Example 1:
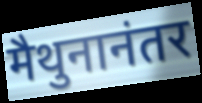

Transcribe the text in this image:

मैथुनानंतर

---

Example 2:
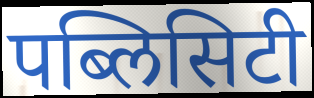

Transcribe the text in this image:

पब्लिसिटी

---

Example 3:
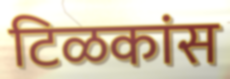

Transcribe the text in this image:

टिळकांस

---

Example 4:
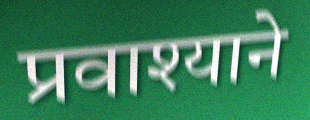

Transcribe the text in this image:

प्रवाश्याने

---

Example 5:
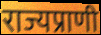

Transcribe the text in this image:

राज्यप्राणी